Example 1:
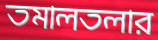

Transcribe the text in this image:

তমালতলার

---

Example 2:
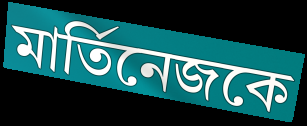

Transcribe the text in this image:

মার্তিনেজকে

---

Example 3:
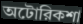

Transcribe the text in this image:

অটোরিকশা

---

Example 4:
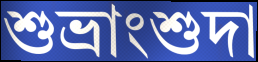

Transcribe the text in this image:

শুভ্রাংশুদা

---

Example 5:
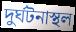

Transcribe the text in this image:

দুর্ঘটনাস্থল